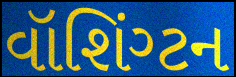
વૉશિંગ્ટન